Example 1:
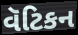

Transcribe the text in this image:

વૅટિકન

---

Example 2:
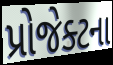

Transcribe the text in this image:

પ્રોજેક્ટના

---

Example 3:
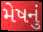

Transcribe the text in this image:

મેષનું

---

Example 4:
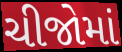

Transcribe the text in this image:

ચીજોમાં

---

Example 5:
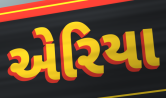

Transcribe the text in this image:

એરિયા